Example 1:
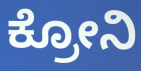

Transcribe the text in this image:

ಕ್ರೋನಿ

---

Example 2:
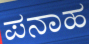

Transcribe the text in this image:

ಪನಾಹ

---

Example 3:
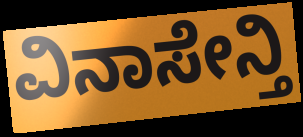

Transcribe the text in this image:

ವಿನಾಸೇನ್ತಿ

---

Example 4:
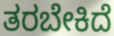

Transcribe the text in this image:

ತರಬೇಕಿದೆ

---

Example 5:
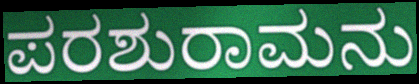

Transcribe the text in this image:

ಪರಶುರಾಮನು